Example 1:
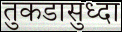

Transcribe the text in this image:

तुकडासुध्दा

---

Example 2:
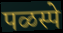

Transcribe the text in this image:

पळस्पे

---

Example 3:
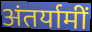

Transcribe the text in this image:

अंतर्यामीं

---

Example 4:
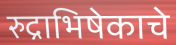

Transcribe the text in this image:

रुद्राभिषेकाचे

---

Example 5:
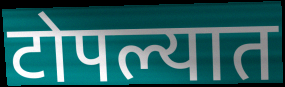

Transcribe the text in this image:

टोपल्यात